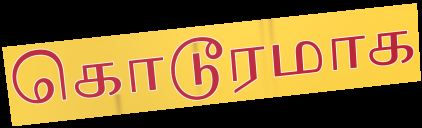
கொடூரமாக